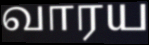
வாரய